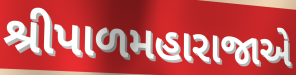
શ્રીપાળમહારાજાએ